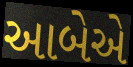
આબેએ